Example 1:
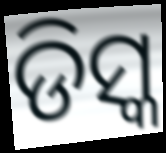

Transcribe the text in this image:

ଡିସ୍କ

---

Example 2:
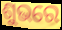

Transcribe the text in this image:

ଶୁଭରେ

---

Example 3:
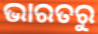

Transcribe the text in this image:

ଭାରତରୁ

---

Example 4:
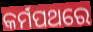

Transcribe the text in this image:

କର୍ମପଥରେ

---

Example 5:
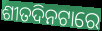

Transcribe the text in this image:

ଶୀତଦିନଟାରେ